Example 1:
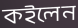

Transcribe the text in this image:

কইলেন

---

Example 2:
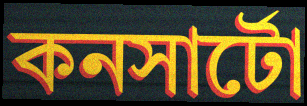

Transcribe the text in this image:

কনসার্টো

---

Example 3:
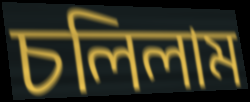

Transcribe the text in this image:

চলিলাম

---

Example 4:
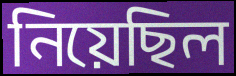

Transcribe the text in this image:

নিয়েছিল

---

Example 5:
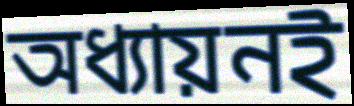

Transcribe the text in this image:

অধ্যায়নই